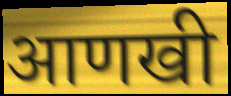
आणखी